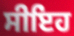
ਸੀਇਹ